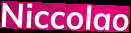
Niccolao